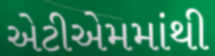
એટીએમમાંથી